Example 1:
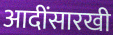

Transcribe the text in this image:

आदींसारखी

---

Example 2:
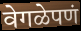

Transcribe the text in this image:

वेगळेपणं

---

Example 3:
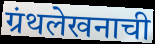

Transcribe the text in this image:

ग्रंथलेखनाची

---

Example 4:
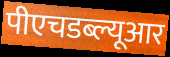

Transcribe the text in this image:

पीएचडब्ल्यूआर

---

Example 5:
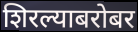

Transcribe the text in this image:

शिरल्याबरोबर